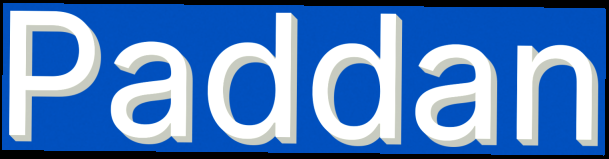
Paddan